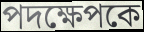
পদক্ষেপকে